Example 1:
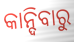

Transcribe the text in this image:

କାନ୍ଦିବାରୁ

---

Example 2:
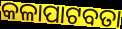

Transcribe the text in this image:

କଳାପାଟବତା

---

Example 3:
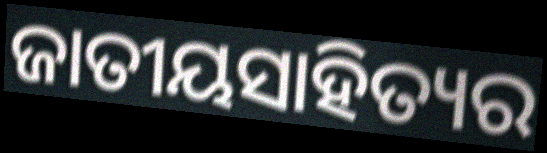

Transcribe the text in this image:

ଜାତୀୟସାହିତ୍ୟର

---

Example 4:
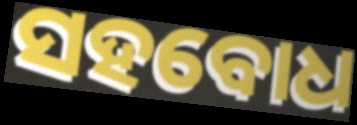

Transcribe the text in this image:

ସହବୋଧ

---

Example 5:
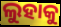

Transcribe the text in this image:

ଲୁହାକୁ